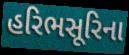
હરિભસૂરિના